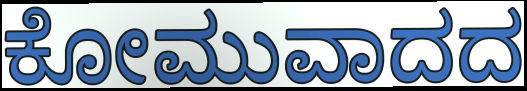
ಕೋಮುವಾದದ